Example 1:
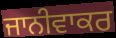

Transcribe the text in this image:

ਜਾਨੀਵਾਕਰ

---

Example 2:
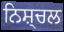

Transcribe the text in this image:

ਨਿਸ਼੍ਚਲ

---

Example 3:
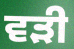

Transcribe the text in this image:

ਵੜੀ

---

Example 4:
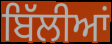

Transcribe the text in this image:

ਬਿੱਲੀਆਂ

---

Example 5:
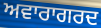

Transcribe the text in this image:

ਅਵਾਰਾਗਰਦ